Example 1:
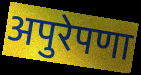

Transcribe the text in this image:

अपुरेपणा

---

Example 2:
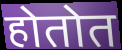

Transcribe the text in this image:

होतोत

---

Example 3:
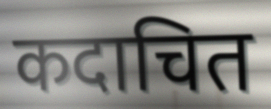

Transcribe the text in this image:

कदाचित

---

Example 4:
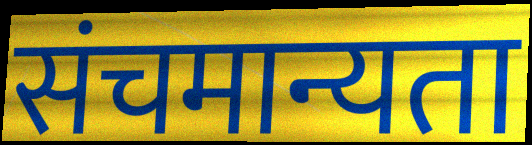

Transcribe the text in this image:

संचमान्यता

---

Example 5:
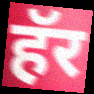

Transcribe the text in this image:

हॅर